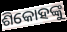
ଶିକୋହଙ୍କୁ